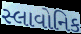
સ્લાવોનિક